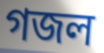
গজল